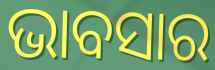
ଭାବସାର